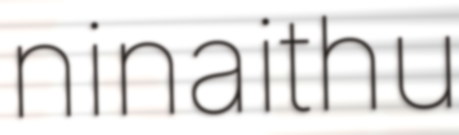
ninaithu